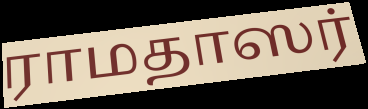
ராமதாஸர்